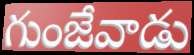
గుంజేవాడు